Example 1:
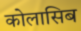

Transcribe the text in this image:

कोलासिब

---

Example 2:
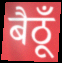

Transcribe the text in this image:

बैठूँ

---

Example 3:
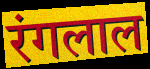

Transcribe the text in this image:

रंगलाल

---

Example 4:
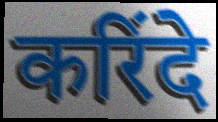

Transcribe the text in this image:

करिंदे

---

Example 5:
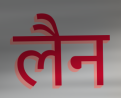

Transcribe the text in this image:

लैन